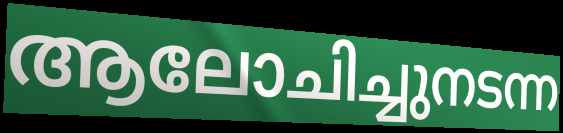
ആലോചിച്ചുനടന്ന